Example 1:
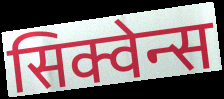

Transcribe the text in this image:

सिक्वेन्स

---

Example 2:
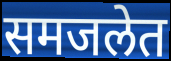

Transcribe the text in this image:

समजलेत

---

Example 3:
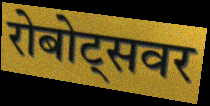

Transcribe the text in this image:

रोबोट्सवर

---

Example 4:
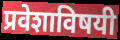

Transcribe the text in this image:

प्रवेशाविषयी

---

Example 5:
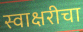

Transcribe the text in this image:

स्वाक्षरीचा